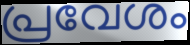
പ്രവേശം